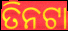
ତିନଟା